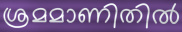
ശ്രമമാണിതിൽ